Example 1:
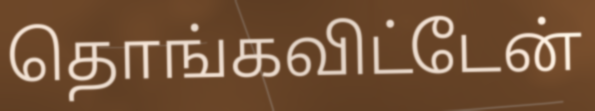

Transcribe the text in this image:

தொங்கவிட்டேன்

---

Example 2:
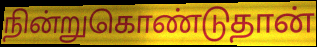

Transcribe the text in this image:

நின்றுகொண்டுதான்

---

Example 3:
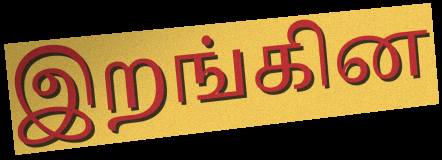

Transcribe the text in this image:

இறங்கின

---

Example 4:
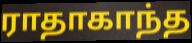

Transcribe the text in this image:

ராதாகாந்த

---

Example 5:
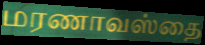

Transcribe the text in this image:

மரணாவஸ்தை